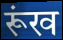
रूंख